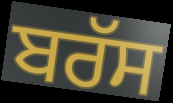
ਬਰੱਸ